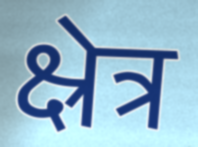
क्ष्रेत्र